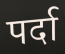
पर्दा